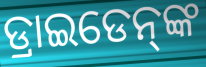
ଡ୍ରାଇଡେନ୍‌ଙ୍କ